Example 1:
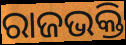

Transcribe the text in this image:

ରାଜଭକ୍ତି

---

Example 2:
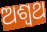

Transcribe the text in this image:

ଅଶ୍ବଥ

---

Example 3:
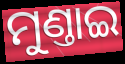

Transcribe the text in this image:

ମୁଣ୍ତାଇ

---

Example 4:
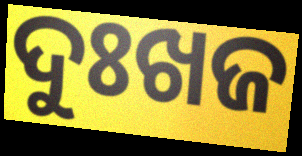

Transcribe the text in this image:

ଦୁଃଖଜ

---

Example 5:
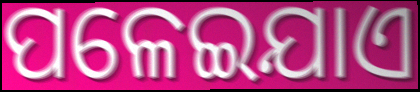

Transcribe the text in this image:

ପଳେଇଯାଏ